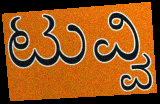
ಟುವ್ವಿ